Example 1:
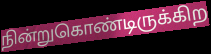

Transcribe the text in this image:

நின்றுகொண்டிருக்கிற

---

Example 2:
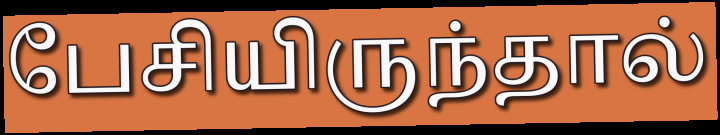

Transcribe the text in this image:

பேசியிருந்தால்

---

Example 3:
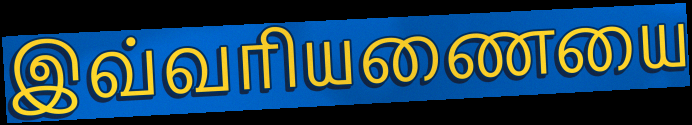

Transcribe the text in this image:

இவ்வரியணையை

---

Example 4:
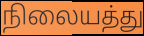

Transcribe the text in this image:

நிலையத்து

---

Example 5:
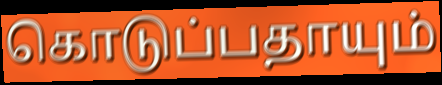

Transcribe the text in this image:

கொடுப்பதாயும்